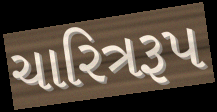
ચારિત્રરૂપ